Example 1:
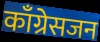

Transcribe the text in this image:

काँग्रेसजन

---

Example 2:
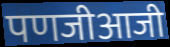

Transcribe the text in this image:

पणजीआजी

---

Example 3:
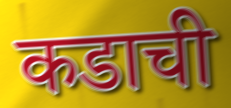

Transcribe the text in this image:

कडाची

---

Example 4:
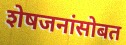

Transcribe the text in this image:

शेषजनांसोबत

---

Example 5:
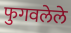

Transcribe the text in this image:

फुगवलेले